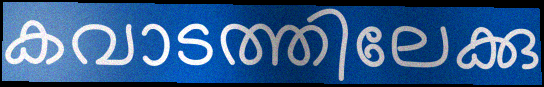
കവാടത്തിലേക്കു